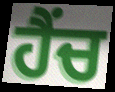
ਹੈਂਚ